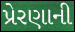
પ્રેરણાની